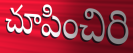
చూపించిరి